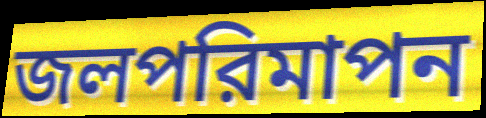
জলপরিমাপন